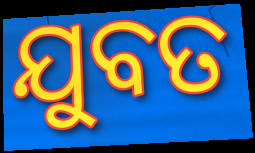
ଯୁବତ